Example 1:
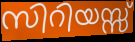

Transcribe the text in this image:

സിറിയസ്സ്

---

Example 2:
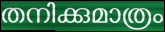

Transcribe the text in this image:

തനിക്കുമാത്രം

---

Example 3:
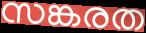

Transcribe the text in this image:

സങ്കരത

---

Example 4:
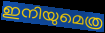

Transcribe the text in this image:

ഇനിയുമെത്ര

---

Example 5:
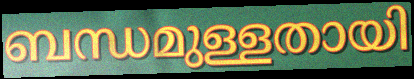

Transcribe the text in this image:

ബന്ധമുള്ളതായി